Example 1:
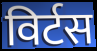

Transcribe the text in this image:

विर्टस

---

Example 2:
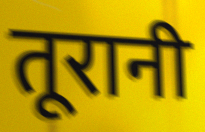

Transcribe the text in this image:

तूरानी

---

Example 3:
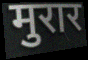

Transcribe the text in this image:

मुरार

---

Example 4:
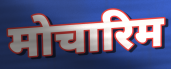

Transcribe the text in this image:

मोचारिम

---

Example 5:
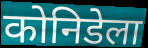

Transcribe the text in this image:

कोनिडेला